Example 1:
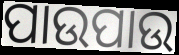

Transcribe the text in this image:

ପାଉପାଉ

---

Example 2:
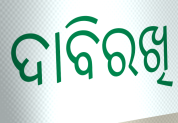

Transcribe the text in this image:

ଦାବିରଖି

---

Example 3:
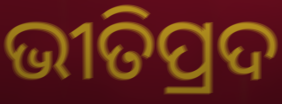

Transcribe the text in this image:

ଭୀତିପ୍ରଦ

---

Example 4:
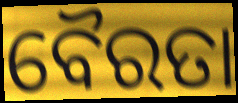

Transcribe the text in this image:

ବୈରତା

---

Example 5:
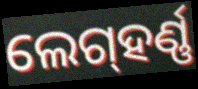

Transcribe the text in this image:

ଲେଗ୍‌ହର୍ଣ୍ଣ